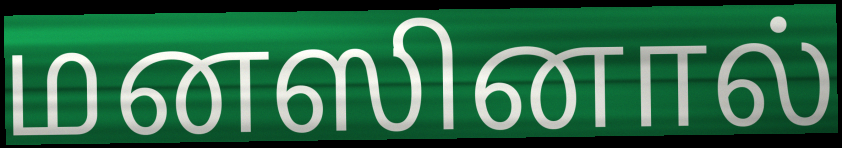
மனஸினால்